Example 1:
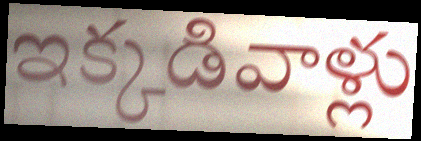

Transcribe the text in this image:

ఇక్కడివాళ్లు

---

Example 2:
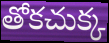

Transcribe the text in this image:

తోకచుక్క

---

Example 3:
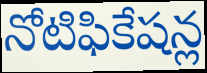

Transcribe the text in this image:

నోటిఫికేషన్ల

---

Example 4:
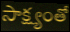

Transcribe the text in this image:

సాక్ష్యంతో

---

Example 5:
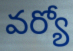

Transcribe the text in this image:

వర్యో